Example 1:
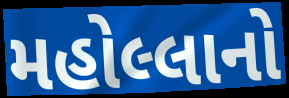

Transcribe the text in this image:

મહોલ્લાનો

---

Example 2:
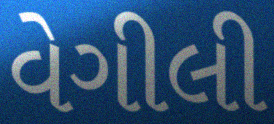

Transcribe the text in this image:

વેગીલી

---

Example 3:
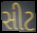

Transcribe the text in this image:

સીટ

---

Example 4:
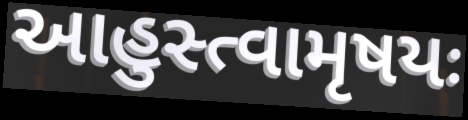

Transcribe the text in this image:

આહુસ્ત્વામૃષયઃ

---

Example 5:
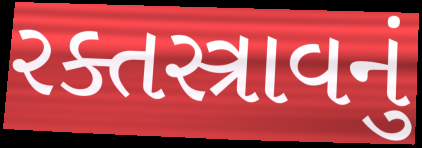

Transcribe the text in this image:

રક્તસ્ત્રાવનું